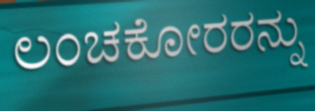
ಲಂಚಕೋರರನ್ನು